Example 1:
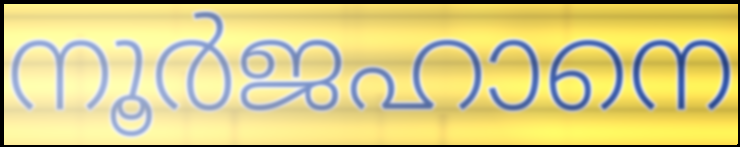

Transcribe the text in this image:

നൂർജഹാനെ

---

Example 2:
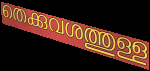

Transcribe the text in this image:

തെക്കുവശത്തുള്ള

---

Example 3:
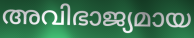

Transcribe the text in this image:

അവിഭാജ്യമായ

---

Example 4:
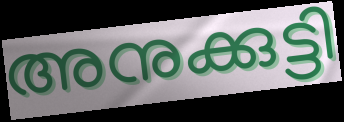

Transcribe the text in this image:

അനുക്കുട്ടി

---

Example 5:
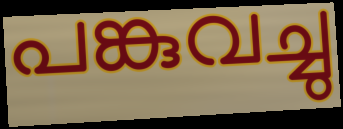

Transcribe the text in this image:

പങ്കുവച്ചു